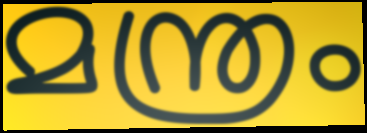
മന്ത്രം